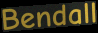
Bendall